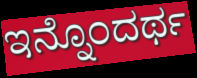
ಇನ್ನೊಂದರ್ಥ